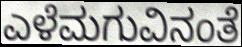
ಎಳೆಮಗುವಿನಂತೆ